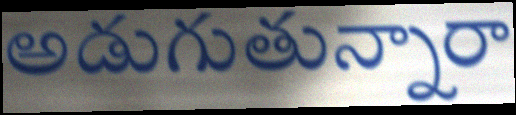
అడుగుతున్నారా